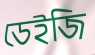
ডেইজি